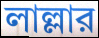
লাল্লার